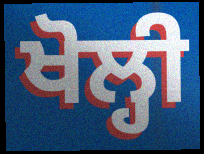
ਖੋਲ੍ਹੀ